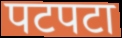
पटपटा